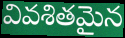
వివశితమైన